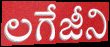
లగేజీని